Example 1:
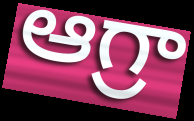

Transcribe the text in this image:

ఆగ్రా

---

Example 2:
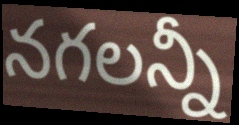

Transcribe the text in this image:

నగలన్నీ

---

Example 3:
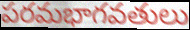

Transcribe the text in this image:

పరమభాగవతులు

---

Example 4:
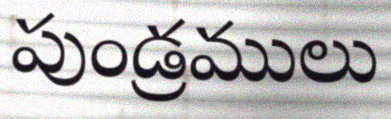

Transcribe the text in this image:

పుండ్రములు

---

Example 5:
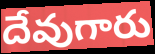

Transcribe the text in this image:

దేవుగారు